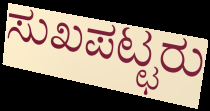
ಸುಖಪಟ್ಟರು